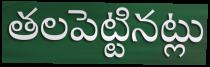
తలపెట్టినట్లు